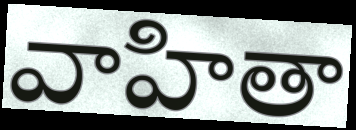
వాహితా